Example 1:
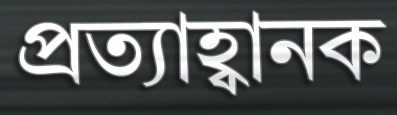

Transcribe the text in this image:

প্ৰত্যাহ্বানক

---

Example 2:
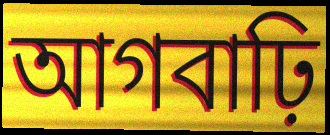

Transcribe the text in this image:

আগবাঢ়ি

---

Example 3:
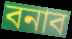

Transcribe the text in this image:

বনাব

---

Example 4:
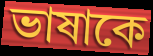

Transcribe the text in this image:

ভাষাকে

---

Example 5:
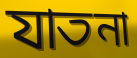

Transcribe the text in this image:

যাতনা